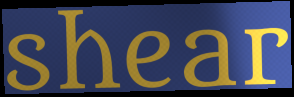
shear